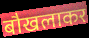
बौखलाकर